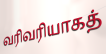
வரிவரியாகத்